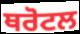
ਥਰੋਟਲ